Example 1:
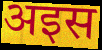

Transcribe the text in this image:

अइस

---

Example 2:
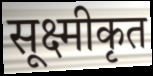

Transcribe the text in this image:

सूक्ष्मीकृत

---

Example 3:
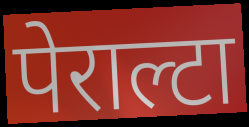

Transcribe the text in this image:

पेराल्टा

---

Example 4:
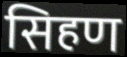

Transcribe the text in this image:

सिहण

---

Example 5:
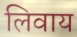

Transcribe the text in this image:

लिवाय